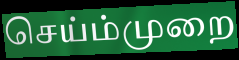
செய்ம்முறை